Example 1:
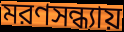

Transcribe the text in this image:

মরণসন্ধ্যায়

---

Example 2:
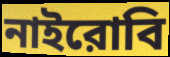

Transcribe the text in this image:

নাইরোবি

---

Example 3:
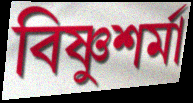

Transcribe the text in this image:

বিষ্ণুশর্মা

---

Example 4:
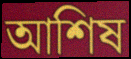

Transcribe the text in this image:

আশিষ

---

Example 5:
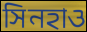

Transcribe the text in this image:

সিনহাও